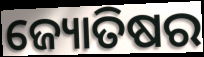
ଜ୍ୟୋତିଷର